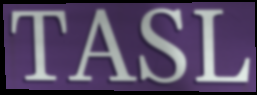
TASL